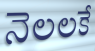
నెలలకే